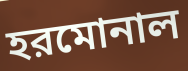
হরমোনাল